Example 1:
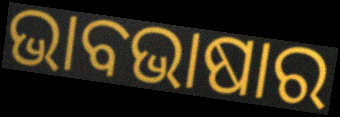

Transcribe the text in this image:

ଭାବଭାଷାର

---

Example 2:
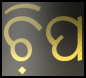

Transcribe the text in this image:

ଚ଼ିପ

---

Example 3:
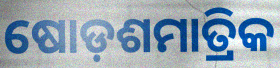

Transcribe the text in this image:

ଷୋଡ଼ଶମାତ୍ରିକ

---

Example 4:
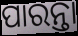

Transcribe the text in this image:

ପାରନ୍ତା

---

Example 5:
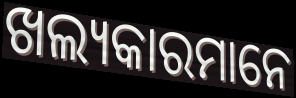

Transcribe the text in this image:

ଖଲ୍ୟକାରମାନେ